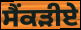
ਸੈਂਕੜੀਏ